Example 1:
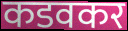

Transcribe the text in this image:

कडवकर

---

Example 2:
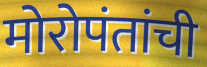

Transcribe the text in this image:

मोरोपंतांची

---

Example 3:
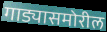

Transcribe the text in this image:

गाड्यासमोरील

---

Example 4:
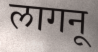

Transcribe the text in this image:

लागनू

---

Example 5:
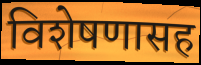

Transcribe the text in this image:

विशेषणासह